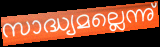
സാദ്ധ്യമല്ലെന്നു്